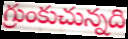
గ్రుంకుచున్నది